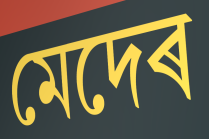
মেদেৰ